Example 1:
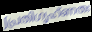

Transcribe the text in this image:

ഽപ്രതിഗൃഹ്ണതഃ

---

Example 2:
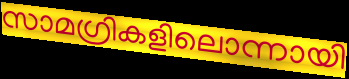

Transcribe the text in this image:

സാമഗ്രികളിലൊന്നായി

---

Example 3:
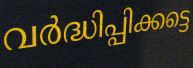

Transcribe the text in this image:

വർദ്ധിപ്പിക്കട്ടെ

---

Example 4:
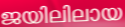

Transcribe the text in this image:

ജയിലിലായ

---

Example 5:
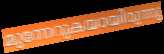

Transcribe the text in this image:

മുന്നേറുകയായിരുന്നു